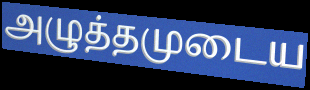
அழுத்தமுடைய